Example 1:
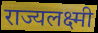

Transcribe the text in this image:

राज्यलक्ष्मी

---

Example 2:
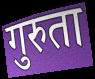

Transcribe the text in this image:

गुरुता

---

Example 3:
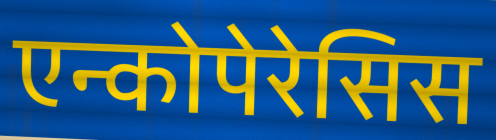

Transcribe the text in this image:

एन्कोपेरेसिस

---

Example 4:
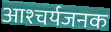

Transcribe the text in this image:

आश्चर्यजनक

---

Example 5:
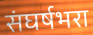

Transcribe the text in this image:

संघर्षभरा